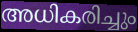
അധികരിച്ചും